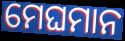
ମେଘମାନ